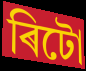
ৰিটো